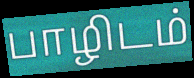
பாழிடம்